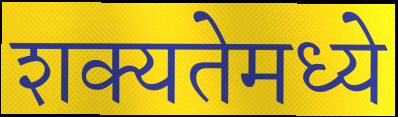
शक्यतेमध्ये